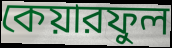
কেয়ারফুল